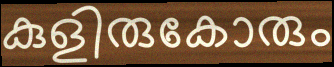
കുളിരുകോരും